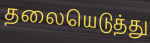
தலையெடுத்து